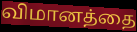
விமானத்தை